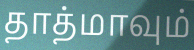
தாத்மாவும்